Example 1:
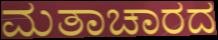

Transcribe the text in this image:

ಮತಾಚಾರದ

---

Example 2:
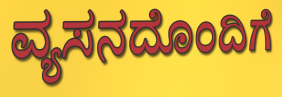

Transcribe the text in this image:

ವ್ಯಸನದೊಂದಿಗೆ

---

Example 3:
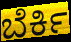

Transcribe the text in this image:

ಬೆರ್ಕಿ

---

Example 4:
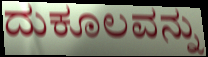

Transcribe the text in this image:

ದುಕೂಲವನ್ನು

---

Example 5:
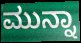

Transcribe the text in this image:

ಮುನ್ನಾ